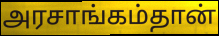
அரசாங்கம்தான்